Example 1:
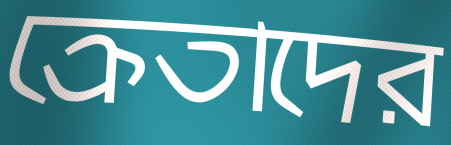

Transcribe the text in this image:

ক্রেতাদের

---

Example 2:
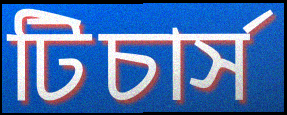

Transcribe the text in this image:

টিচার্স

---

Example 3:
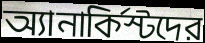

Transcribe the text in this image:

অ্যানার্কিস্টদের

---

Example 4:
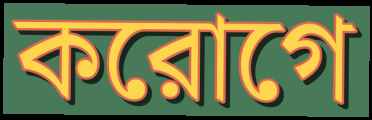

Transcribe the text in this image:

করোগে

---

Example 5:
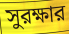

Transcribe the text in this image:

সুরক্ষার